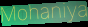
Mohaniya